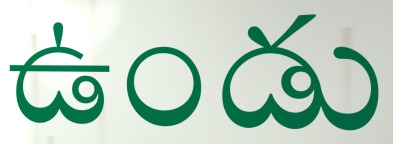
ఉండు